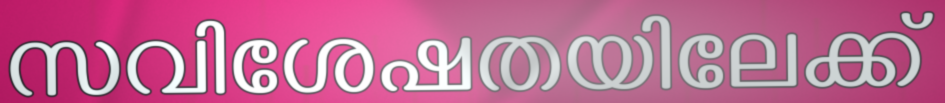
സവിശേഷതയിലേക്ക്